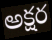
అక్షర